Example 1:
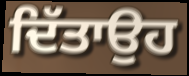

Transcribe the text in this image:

ਦਿੱਤਾਉਹ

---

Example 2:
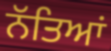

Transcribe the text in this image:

ਨੱਤਿਆਂ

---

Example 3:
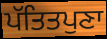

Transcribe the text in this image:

ਪੱਤਿਤਪੁਣਾ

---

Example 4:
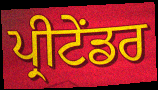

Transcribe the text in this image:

ਪ੍ਰੀਟੇਂਡਰ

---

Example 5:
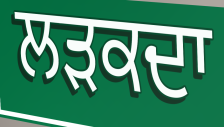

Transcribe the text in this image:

ਲੜਕਦਾ